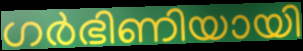
ഗർഭിണിയായി